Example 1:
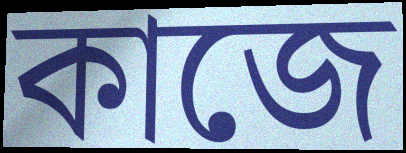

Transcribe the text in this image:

কাজে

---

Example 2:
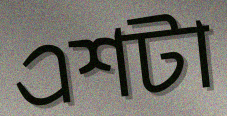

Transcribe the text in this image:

এশটা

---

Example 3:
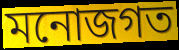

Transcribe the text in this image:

মনোজগত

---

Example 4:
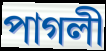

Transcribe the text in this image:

পাগলী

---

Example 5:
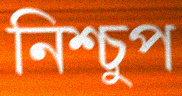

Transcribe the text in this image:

নিশ্চুপ